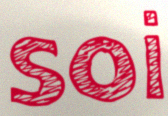
soi